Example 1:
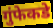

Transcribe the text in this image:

गुंफेकडे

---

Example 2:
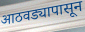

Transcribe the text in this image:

आठवड्यापासून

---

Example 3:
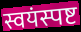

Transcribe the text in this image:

स्वयंस्पष्ट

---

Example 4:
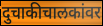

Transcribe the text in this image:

दुचाकीचालकांवर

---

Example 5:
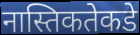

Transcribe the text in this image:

नास्तिकतेकडे